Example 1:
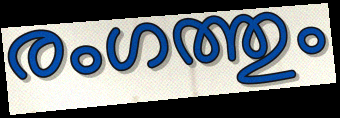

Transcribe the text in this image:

രംഗത്തും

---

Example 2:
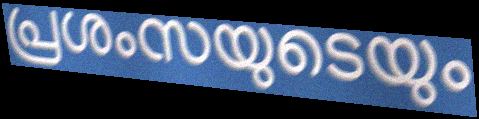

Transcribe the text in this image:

പ്രശംസയുടെയും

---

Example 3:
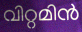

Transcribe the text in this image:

വിറ്റമിൻ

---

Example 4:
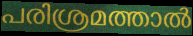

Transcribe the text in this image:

പരിശ്രമത്താൽ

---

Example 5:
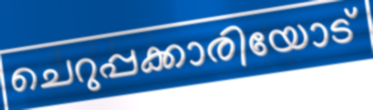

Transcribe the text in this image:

ചെറുപ്പക്കാരിയോട്